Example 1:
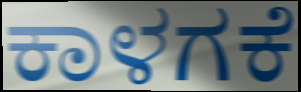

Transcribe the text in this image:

ಕಾಳಗಕೆ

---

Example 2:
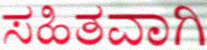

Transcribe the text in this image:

ಸಹಿತವಾಗಿ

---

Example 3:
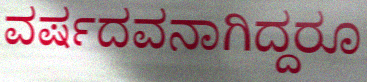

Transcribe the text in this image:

ವರ್ಷದವನಾಗಿದ್ದರೂ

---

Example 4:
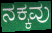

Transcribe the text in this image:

ನಕ್ಕವು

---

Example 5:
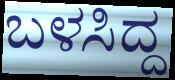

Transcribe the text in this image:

ಬಳಸಿದ್ದ